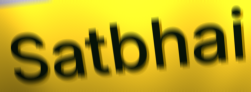
Satbhai